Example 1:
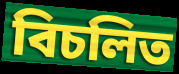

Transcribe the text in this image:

বিচলিত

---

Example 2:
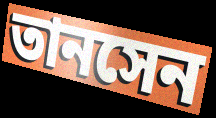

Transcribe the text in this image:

তানসেন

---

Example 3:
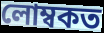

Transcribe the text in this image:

লোম্বকত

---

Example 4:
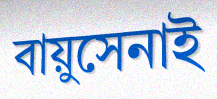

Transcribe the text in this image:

বায়ুসেনাই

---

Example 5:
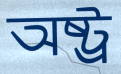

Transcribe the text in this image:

অষ্ট্ৰ